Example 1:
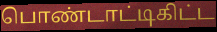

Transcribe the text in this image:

பொண்டாட்டிகிட்ட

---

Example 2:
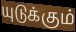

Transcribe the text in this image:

யுடுக்கும்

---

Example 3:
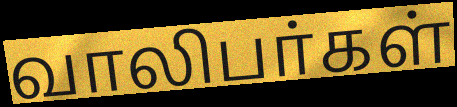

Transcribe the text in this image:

வாலிபர்கள்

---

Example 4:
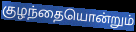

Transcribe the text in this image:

குழந்தையொன்றும்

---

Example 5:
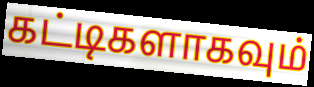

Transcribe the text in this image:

கட்டிகளாகவும்